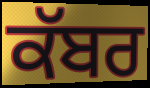
ਕੱਬਰ